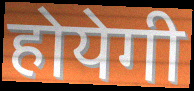
होयेगी